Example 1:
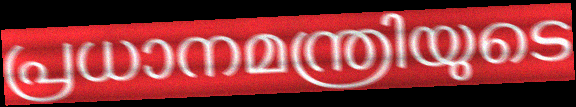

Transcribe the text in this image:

പ്രധാനമന്ത്രിയുടെ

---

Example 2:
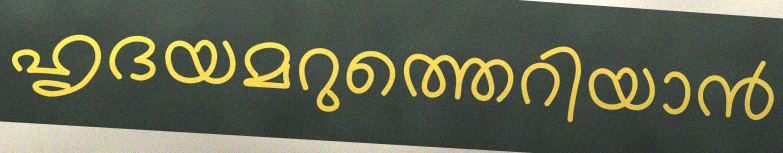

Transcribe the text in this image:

ഹൃദയമറുത്തെറിയാൻ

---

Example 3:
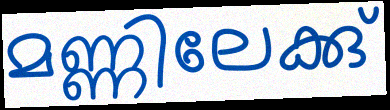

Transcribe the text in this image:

മണ്ണിലേക്കു്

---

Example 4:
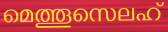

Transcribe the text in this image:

മെത്തൂസെലഹ്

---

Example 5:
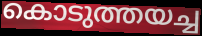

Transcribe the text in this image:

കൊടുത്തയച്ച